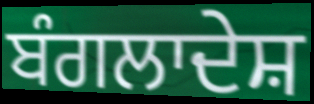
ਬੰਗਲਾਦੇਸ਼